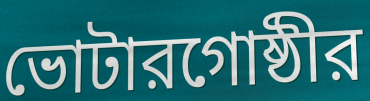
ভোটারগোষ্ঠীর